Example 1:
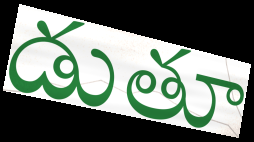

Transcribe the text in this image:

డుతూ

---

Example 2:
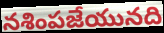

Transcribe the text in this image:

నశింపజేయునది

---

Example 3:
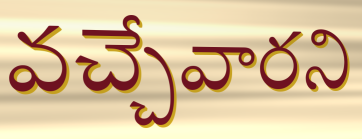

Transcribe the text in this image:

వచ్చేవారని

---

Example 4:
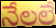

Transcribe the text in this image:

నేలలే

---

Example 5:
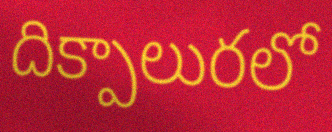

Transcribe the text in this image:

దిక్పాలురలో